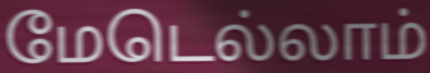
மேடெல்லாம்